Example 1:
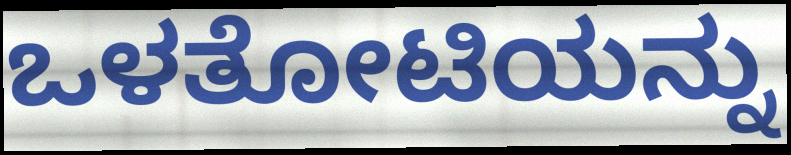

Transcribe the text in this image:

ಒಳತೋಟಿಯನ್ನು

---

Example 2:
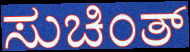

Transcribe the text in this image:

ಸುಚಿಂತ್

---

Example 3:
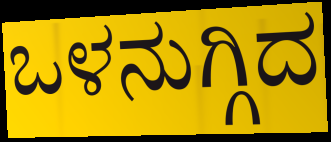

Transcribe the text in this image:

ಒಳನುಗ್ಗಿದ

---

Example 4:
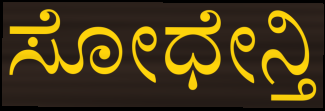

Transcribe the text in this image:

ಸೋಧೇನ್ತಿ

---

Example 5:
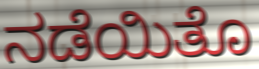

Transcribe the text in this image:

ನಡೆಯಿತೊ